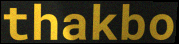
thakbo